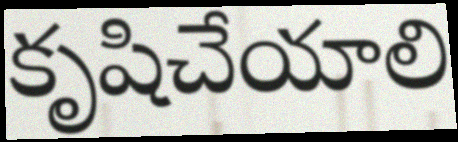
కృషిచేయాలి